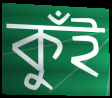
কুঁই